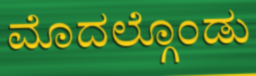
ಮೊದಲ್ಗೊಂಡು